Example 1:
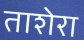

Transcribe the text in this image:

ताशेरा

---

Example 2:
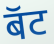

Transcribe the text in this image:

बॅट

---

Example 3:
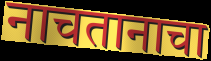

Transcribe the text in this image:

नाचतानाचा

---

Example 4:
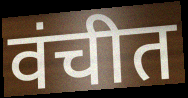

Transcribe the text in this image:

वंचीत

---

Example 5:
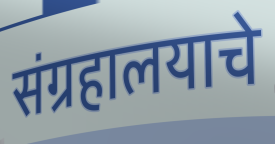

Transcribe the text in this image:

संग्रहालयाचे